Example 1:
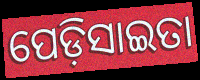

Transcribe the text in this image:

ପେଡ଼ିସାଇତା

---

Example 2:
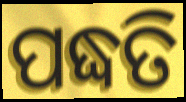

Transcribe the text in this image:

ପଦ୍ଧତି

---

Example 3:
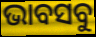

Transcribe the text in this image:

ଭାବସବୁ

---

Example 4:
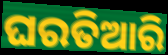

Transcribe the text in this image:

ଘରତିଆରି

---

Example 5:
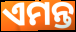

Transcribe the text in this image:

ଏମନ୍ତ